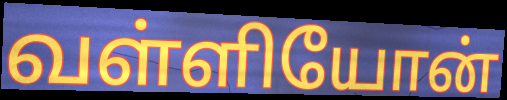
வள்ளியோன்